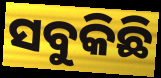
ସବୁକିଛି